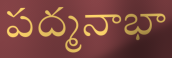
పద్మనాభా